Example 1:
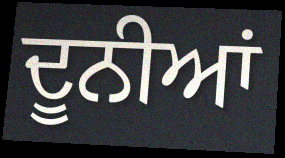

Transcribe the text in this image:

ਦੂਨੀਆਂ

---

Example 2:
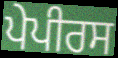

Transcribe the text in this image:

ਪੇਪੀਰਸ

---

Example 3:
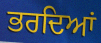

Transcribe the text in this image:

ਭਰਦਿਆਂ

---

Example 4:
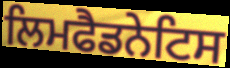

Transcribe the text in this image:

ਲਿਮਫੈਡਨੇਟਿਸ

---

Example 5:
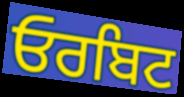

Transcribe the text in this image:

ਓਰਬਿਟ